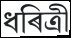
ধৰিত্ৰী